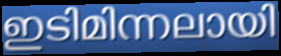
ഇടിമിന്നലായി